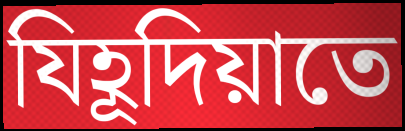
যিহূদিয়াতে